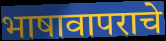
भाषावापराचे